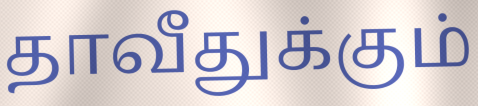
தாவீதுக்கும்